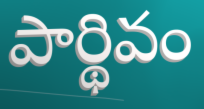
పార్థివం